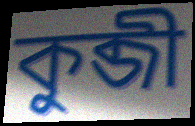
কুব্জী